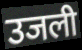
उजली